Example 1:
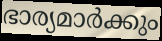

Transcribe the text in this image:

ഭാര്യമാർക്കും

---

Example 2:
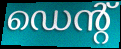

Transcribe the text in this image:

ഡെന്റ്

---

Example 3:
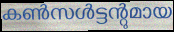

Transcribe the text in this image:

കൺസൾട്ടന്റുമായ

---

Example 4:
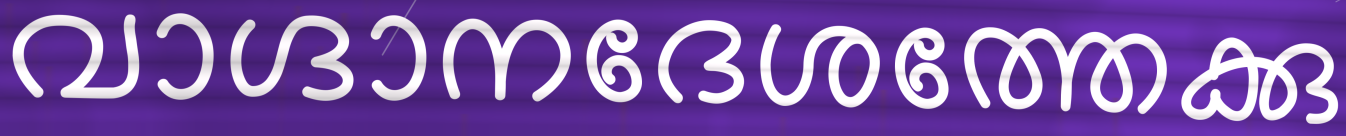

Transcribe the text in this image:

വാഗ്ദാനദേശത്തേക്കു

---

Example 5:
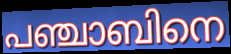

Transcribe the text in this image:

പഞ്ചാബിനെ